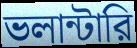
ভলান্টারি